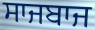
ਸਾਜਬਾਜ